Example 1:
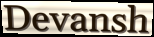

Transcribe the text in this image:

Devansh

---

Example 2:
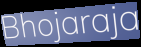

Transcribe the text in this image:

Bhojaraja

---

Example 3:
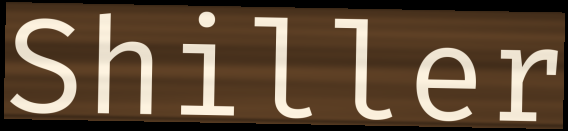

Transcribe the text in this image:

Shiller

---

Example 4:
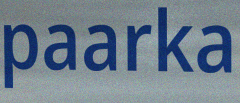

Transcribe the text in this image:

paarka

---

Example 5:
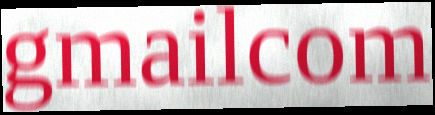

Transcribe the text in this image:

gmailcom